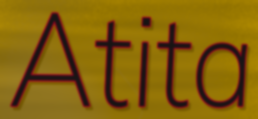
Atita